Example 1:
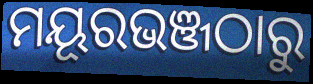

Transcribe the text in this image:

ମୟୂରଭଞ୍ଜଠାରୁ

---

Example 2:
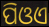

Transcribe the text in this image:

ପିଓଏ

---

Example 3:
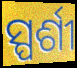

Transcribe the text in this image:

ସ୍ପର୍ଶୀ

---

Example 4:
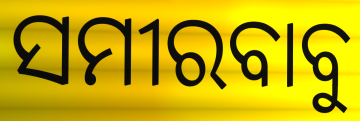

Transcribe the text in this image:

ସମୀରବାବୁ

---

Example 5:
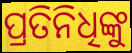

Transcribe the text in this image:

ପ୍ରତିନିଧିଙ୍କୁ